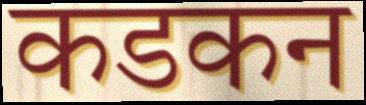
कडकन